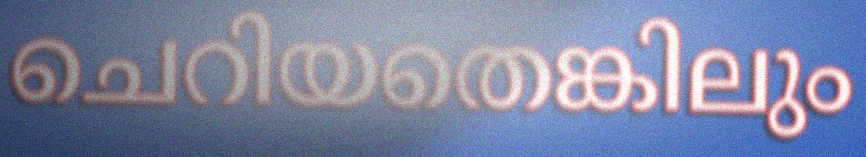
ചെറിയതെങ്കിലും